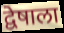
द्वेषाला